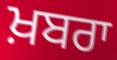
ਖ਼ਬਰਾ